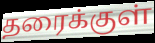
தரைக்குள்